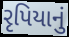
રૃપિયાનું